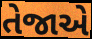
તેજાએ